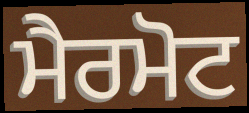
ਮੈਰਮੋਟ